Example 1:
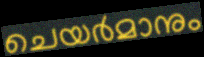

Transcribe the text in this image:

ചെയർമാനും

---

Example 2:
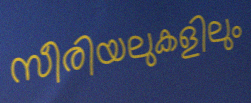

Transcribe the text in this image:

സീരിയലുകളിലും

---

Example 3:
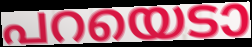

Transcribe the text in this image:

പറയെടാ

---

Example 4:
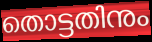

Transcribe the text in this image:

തൊട്ടതിനും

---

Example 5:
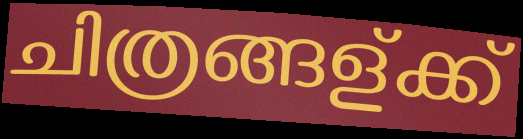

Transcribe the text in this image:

ചിത്രങ്ങള്ക്ക്